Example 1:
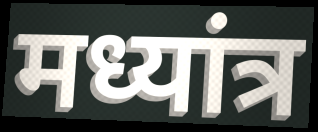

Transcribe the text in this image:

मध्यांत्र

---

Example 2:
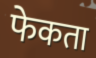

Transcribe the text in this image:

फेकता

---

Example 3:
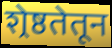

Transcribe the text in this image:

श्रेष्ठतेतून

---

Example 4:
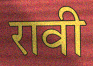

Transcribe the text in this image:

रावी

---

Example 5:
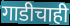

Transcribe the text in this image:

गाडीचाही